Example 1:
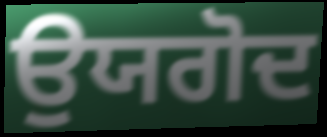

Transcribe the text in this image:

ਉਯਗੋਦ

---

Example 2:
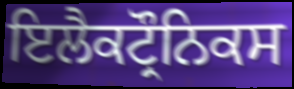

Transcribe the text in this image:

ਇਲੈਕਟ੍ਰੌਨਿਕਸ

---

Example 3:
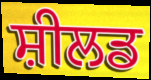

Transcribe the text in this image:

ਸ਼ੀਲਡ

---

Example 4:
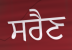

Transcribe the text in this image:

ਸਰੈਣ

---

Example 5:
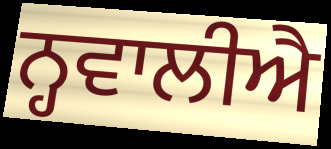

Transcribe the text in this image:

ਨ੍ਹਵਾਲੀਐ